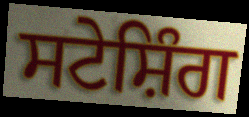
ਸਟੇਸ਼ਿੰਗ